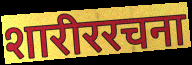
शारीररचना